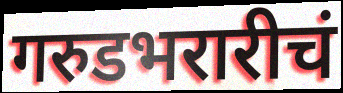
गरुडभरारीचं